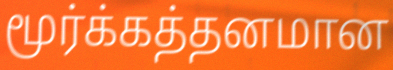
மூர்க்கத்தனமான